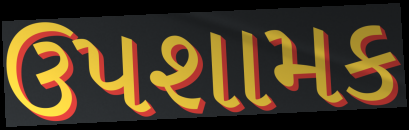
ઉપશામક